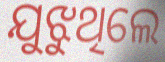
ଯୁଝୁଥିଲେ